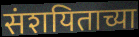
संशयिताच्या